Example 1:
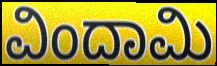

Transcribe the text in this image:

ವಿಂದಾಮಿ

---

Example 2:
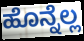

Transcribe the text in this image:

ಹೊನ್ನೆಲ್ಲ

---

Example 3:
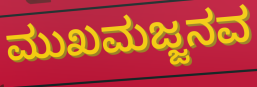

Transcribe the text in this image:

ಮುಖಮಜ್ಜನವ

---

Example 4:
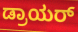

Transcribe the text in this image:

ಡ್ರಾಯರ್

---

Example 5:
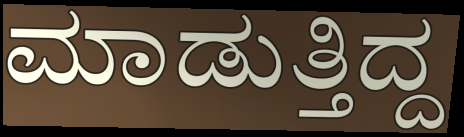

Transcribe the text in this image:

ಮಾಡುತ್ತಿದ್ದ